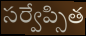
సర్వేప్సిత